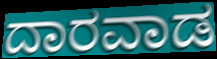
ದಾರವಾಡ